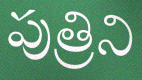
పుత్రిని